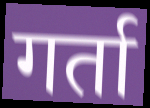
गर्ता